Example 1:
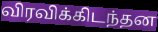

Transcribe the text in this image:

விரவிக்கிடந்தன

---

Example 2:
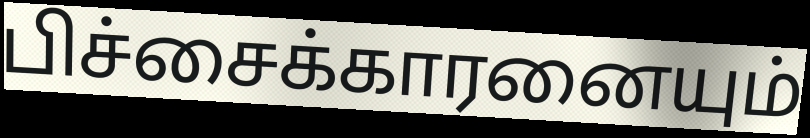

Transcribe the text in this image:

பிச்சைக்காரனையும்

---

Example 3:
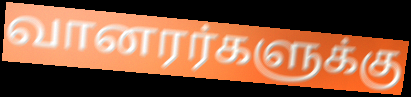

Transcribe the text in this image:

வானரர்களுக்கு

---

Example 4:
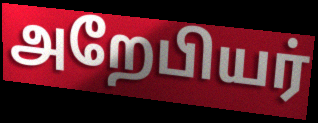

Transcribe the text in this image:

அறேபியர்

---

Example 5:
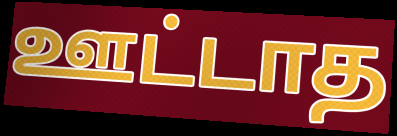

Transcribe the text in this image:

ஊட்டாத